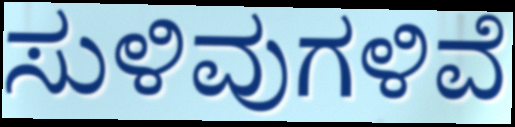
ಸುಳಿವುಗಳಿವೆ